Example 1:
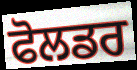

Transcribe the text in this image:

ਫੋਲਡਰ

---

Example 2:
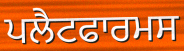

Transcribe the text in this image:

ਪਲੈਟਫਾਰਮਸ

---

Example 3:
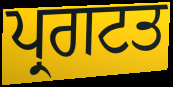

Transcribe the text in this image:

ਪ੍ਰਗਟਤ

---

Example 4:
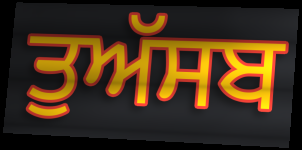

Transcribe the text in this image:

ਤੁਅੱਸਬ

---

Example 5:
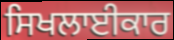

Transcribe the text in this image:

ਸਿਖਲਾਈਕਾਰ